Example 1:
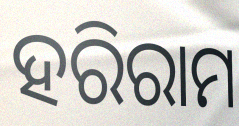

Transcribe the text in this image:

ହରିରାମ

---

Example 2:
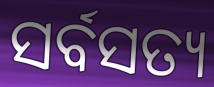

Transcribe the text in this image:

ସର୍ବସତ୍ୟ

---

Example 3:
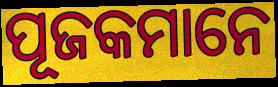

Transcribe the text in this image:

ପୂଜକମାନେ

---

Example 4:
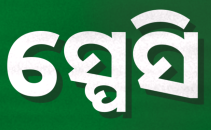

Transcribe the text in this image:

ସ୍ପେସି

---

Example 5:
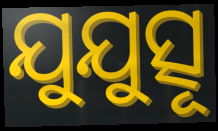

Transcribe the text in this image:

ଯୁଯୁତ୍ସୂ